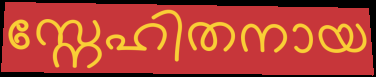
സ്നേഹിതനായ